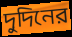
দুদিনের